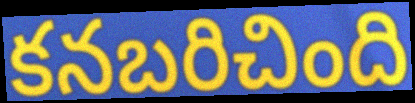
కనబరిచింది